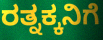
ರತ್ನಕ್ಕನಿಗೆ